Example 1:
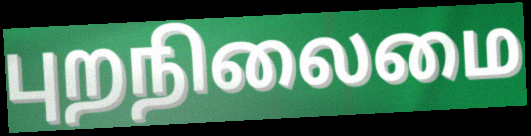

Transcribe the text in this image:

புறநிலைமை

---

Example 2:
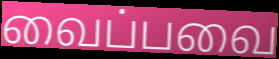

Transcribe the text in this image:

வைப்பவை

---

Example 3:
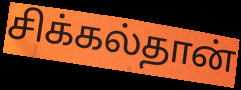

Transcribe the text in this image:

சிக்கல்தான்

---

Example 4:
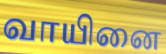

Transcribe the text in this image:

வாயினை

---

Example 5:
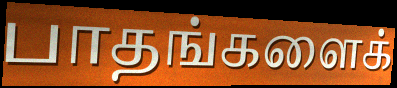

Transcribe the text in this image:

பாதங்களைக்